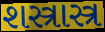
શસ્ત્રાસ્ત્ર